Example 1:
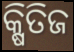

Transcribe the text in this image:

କ୍ଷିତିଜ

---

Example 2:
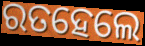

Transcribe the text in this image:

ରତହେଲେ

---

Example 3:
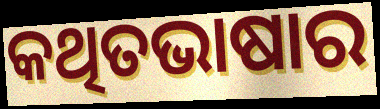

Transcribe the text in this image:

କଥିତଭାଷାର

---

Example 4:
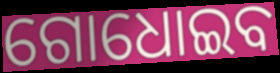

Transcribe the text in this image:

ଗୋଧୋଇବ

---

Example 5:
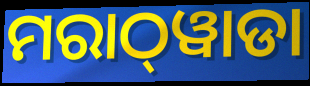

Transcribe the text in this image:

ମରାଠ୍‌ୱାଡା